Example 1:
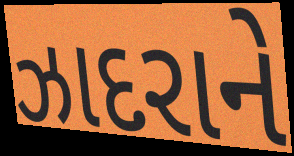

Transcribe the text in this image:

ઝાદરાને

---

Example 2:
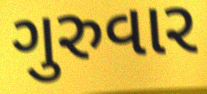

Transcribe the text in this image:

ગુરુવાર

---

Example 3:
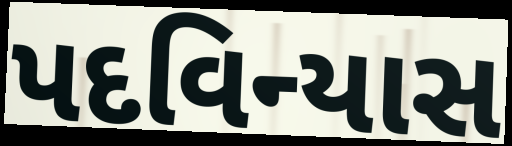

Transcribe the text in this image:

પદવિન્યાસ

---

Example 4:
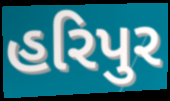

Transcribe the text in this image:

હરિપુર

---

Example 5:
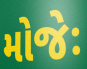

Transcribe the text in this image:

મોજેઃ